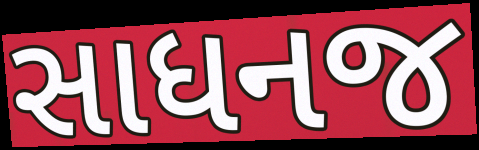
સાધનજ